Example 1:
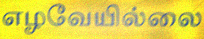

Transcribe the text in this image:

எழவேயில்லை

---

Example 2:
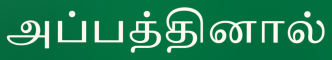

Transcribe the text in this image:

அப்பத்தினால்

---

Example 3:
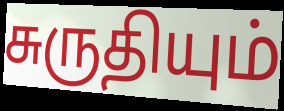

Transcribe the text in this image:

சுருதியும்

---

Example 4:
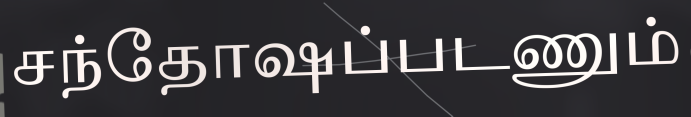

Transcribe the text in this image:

சந்தோஷப்படணும்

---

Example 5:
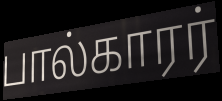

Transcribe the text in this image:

பால்காரர்